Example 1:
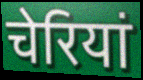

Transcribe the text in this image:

चेरियां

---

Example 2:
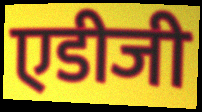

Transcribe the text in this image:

एडीजी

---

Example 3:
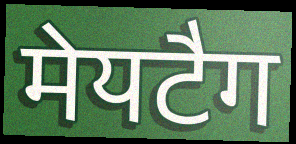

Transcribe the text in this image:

मेयटैग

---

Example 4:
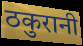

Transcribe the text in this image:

ठकुरानी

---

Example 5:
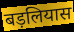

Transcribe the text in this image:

बड़लियास